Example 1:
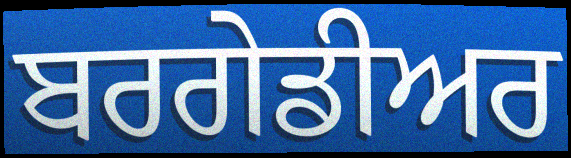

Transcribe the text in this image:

ਬਰਗੇਡੀਅਰ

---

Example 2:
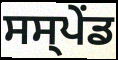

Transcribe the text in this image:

ਸਸ੍ਪੇੰਡ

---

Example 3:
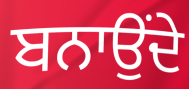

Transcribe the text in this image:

ਬਨਾਉਂਦੇ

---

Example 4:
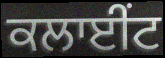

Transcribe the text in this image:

ਕਲਾਈਂਟ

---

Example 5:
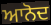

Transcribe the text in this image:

ਆਨੋਦ